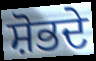
ਸ਼ੋਭਦੇ